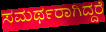
ಸಮರ್ಥರಾಗಿದ್ದರೆ